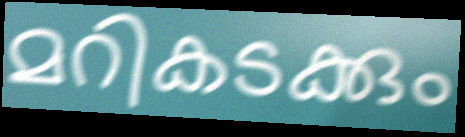
മറികടക്കും